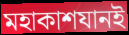
মহাকাশযানই